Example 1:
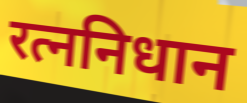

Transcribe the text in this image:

रत्ननिधान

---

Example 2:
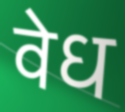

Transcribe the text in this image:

वेध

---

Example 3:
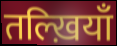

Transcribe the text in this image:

तल्ख़ियाँ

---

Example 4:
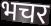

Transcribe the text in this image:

भचर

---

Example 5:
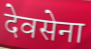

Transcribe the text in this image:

देवसेना